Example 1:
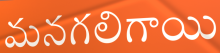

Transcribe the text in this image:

మనగలిగాయి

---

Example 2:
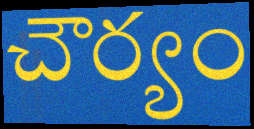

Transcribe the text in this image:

చౌర్యం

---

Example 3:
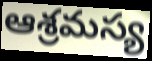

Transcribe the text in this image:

ఆశ్రమస్య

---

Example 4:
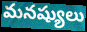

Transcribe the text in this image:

మనష్యులు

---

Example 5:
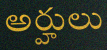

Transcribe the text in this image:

అర్హులు